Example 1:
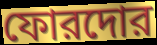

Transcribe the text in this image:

ফোরদোর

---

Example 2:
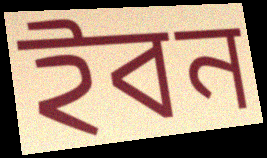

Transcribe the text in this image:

ইবন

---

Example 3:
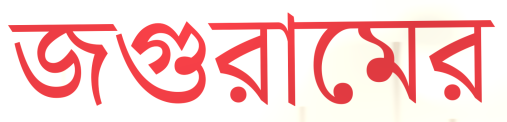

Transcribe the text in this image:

জগুরামের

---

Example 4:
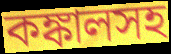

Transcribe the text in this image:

কঙ্কালসহ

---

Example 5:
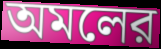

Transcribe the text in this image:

অমলের